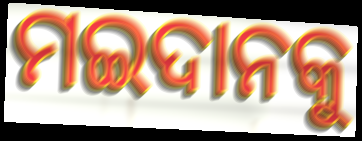
ମଇଦାନକୁ